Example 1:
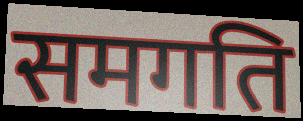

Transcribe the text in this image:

समगति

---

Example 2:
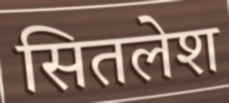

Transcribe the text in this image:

सितलेश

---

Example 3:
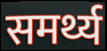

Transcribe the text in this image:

समर्थ्य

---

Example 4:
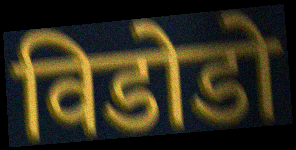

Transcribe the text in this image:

विडोडो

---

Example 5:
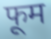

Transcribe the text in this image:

फूम